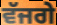
ਵੱਜਗੇ